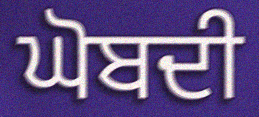
ਘੋਬਦੀ